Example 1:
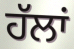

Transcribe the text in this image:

ਹੱਲਾਂ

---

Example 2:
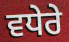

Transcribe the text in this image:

ਵਧੇਰੇ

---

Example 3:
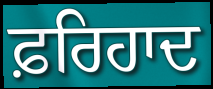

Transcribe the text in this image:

ਫ਼ਰਿਹਾਦ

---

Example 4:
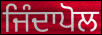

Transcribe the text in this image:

ਜਿੰਦਾਪੋਲ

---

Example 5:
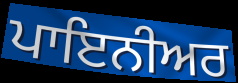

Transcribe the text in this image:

ਪਾਇਨੀਅਰ